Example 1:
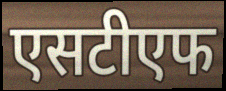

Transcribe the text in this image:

एसटीएफ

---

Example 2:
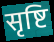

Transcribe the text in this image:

सृष्टि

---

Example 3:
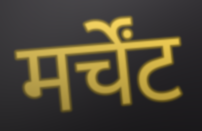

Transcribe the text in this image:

मर्चेंट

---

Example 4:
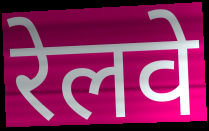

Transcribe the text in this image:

रेलवे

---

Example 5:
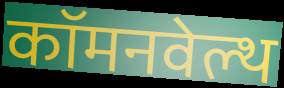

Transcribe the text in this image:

कॉमनवेल्थ